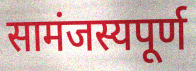
सामंजस्यपूर्ण